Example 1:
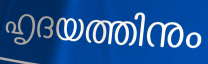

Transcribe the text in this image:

ഹൃദയത്തിനും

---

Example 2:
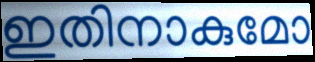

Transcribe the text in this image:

ഇതിനാകുമോ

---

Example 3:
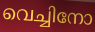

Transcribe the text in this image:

വെച്ചിനോ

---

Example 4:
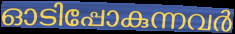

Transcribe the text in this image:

ഓടിപ്പോകുന്നവർ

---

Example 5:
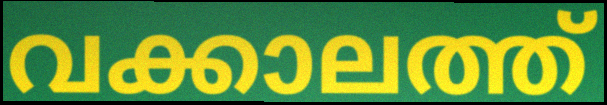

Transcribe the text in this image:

വക്കാലത്ത്